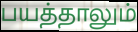
பயத்தாலும்